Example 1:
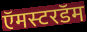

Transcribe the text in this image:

ऍमस्टरडॅम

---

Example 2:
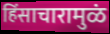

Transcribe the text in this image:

हिंसाचारामुळं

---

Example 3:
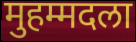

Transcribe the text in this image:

मुहम्मदला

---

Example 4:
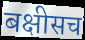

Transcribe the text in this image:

बक्षीसच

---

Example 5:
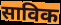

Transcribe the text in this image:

साविक